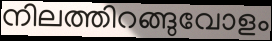
നിലത്തിറങ്ങുവോളം